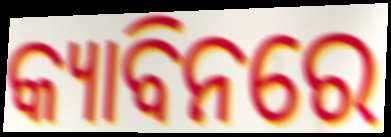
କ୍ୟାବିନରେ